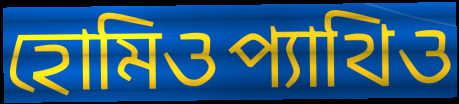
হোমিওপ্যাথিও